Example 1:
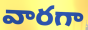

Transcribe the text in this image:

వారగా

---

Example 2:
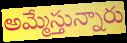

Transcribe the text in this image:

అమ్మేస్తున్నారు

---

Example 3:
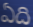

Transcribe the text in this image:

ఏది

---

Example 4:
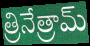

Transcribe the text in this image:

త్రినేత్రామ్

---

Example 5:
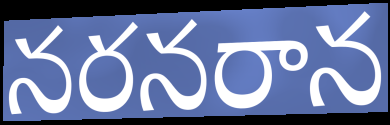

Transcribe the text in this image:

నరనరాన